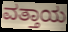
ವತ್ತಾಯ